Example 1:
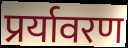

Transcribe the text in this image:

प्रर्यावरण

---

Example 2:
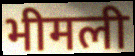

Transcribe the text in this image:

भीमली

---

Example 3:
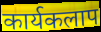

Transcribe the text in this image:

कार्यकलाप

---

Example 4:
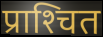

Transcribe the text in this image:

प्राश्चित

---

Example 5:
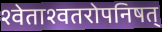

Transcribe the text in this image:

श्वेताश्वतरोपनिषत्